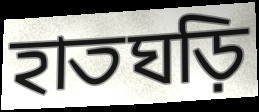
হাতঘড়ি